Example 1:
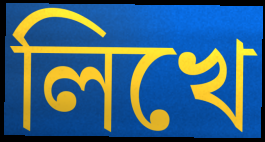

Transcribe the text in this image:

লিখে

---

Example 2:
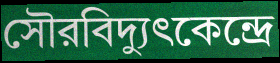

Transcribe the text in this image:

সৌরবিদ্যুৎকেন্দ্রে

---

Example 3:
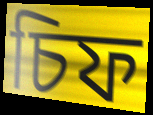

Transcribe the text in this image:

চিফ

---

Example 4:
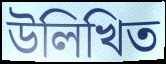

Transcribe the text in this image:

উলিখিত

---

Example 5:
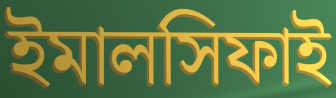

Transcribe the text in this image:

ইমালসিফাই